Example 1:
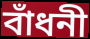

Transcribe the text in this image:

বাঁধনী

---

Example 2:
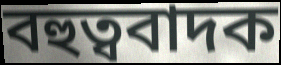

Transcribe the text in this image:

বহুত্ববাদক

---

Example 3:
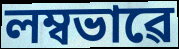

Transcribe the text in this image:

লম্বভাৱে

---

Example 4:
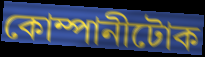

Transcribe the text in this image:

কোম্পানীটোক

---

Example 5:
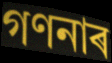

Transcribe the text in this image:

গণনাৰ